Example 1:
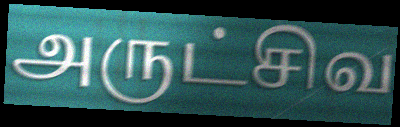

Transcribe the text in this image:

அருட்சிவ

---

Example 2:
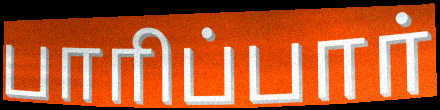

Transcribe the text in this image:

பாரிப்பார்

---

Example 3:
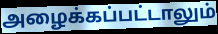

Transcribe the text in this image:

அழைக்கப்பட்டாலும்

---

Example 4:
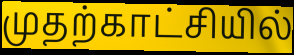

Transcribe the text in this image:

முதற்காட்சியில்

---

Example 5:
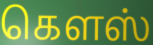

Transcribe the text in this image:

கௌஸ்